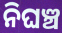
ନିଘଞ୍ଚ